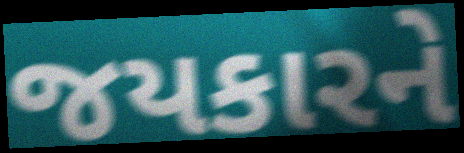
જયકારને